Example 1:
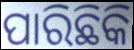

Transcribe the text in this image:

ପାରିଛିକି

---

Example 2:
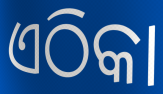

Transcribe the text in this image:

ଏଠିକା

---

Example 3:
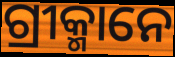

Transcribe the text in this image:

ଗ୍ରୀକ୍ମାନେ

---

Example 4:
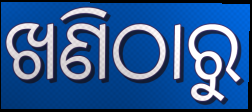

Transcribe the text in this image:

ଖଣିଠାରୁ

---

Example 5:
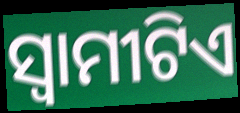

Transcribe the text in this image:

ସ୍ୱାମୀଟିଏ